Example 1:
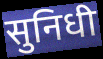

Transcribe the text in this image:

सुनिधी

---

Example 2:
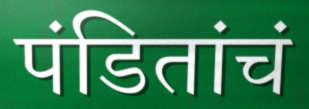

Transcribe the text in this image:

पंडितांचं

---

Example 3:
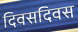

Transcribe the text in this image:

दिवसदिवस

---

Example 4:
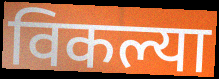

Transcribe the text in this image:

विकल्या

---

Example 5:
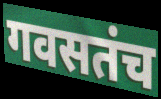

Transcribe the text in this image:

गवसतंच